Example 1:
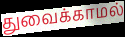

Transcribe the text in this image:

துவைக்காமல்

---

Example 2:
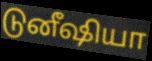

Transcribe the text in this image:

டுனீஷியா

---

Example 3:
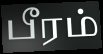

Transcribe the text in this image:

பீரம்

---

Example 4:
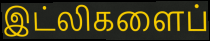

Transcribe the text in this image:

இட்லிகளைப்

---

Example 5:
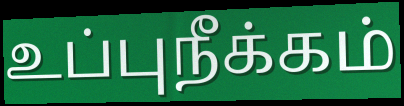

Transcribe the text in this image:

உப்புநீக்கம்